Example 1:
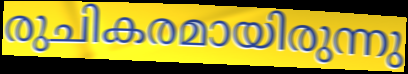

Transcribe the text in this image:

രുചികരമായിരുന്നു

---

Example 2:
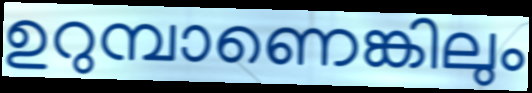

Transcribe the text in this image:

ഉറുമ്പാണെങ്കിലും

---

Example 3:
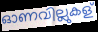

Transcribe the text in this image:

ഓണവില്ലുകള്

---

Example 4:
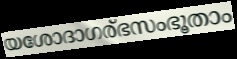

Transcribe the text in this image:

യശോദാഗര്ഭസംഭൂതാം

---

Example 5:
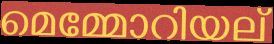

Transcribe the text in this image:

മെമ്മോറിയല്